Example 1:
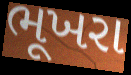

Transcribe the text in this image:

ભૂખરા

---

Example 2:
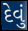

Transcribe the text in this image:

દેવું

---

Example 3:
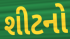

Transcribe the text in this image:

શીટનો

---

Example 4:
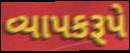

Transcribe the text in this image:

વ્યાપકરૂપે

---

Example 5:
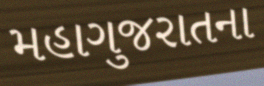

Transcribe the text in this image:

મહાગુજરાતના